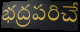
భద్రపరిచే